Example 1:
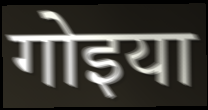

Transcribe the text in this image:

गोइया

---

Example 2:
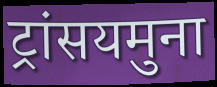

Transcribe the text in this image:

ट्रांसयमुना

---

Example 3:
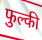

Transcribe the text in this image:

फुल्की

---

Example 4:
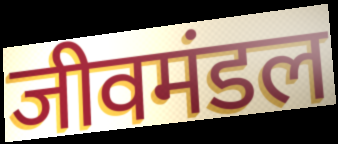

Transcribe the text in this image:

जीवमंडल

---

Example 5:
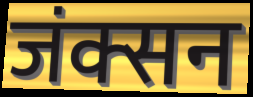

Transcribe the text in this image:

जंक्सन